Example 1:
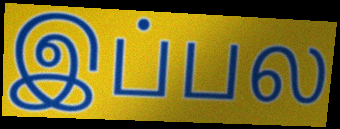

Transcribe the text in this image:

இப்பல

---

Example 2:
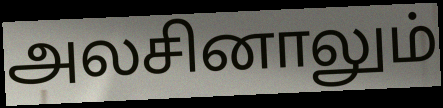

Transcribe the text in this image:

அலசினாலும்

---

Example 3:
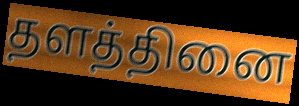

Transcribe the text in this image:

தளத்தினை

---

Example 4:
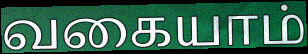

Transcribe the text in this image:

வகையாம்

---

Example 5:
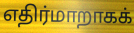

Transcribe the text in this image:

எதிர்மாறாகக்